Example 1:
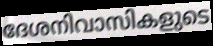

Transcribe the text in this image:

ദേശനിവാസികളുടെ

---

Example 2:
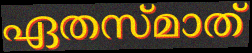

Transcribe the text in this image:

ഏതസ്മാത്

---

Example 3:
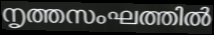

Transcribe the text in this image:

നൃത്തസംഘത്തിൽ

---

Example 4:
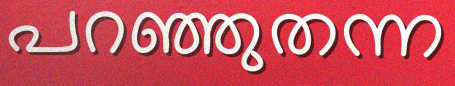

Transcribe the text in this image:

പറഞ്ഞുതന്ന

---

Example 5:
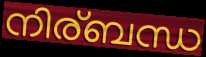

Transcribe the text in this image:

നിര്ബന്ധ